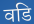
वडि